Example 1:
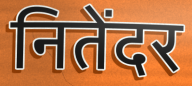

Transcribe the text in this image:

नितेंदर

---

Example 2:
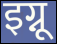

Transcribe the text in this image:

इग्नू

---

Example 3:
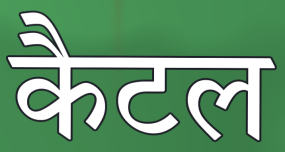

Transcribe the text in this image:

कैटल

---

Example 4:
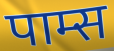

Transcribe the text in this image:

पाम्स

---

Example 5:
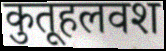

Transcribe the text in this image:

कुतूहलवश